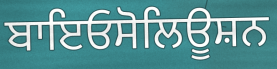
ਬਾਇਓਸੋਲਿਊਸ਼ਨ